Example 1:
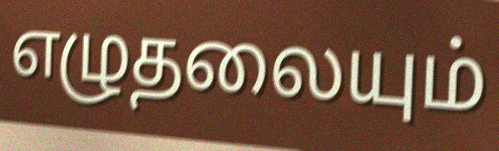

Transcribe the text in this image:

எழுதலையும்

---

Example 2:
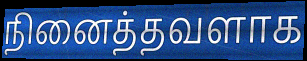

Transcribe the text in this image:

நினைத்தவளாக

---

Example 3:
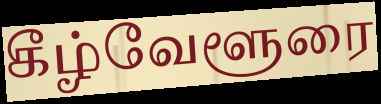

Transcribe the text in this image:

கீழ்வேளூரை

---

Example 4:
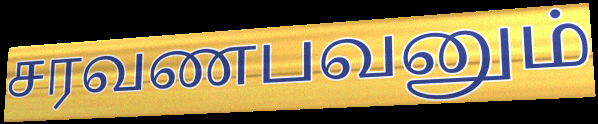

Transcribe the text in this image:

சரவணபவனும்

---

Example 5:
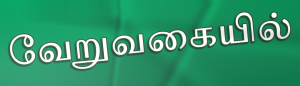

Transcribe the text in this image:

வேறுவகையில்